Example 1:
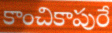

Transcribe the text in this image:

కాంచికాపురే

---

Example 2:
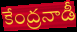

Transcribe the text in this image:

కేంద్రనాడీ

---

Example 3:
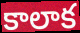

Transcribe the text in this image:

కాలాక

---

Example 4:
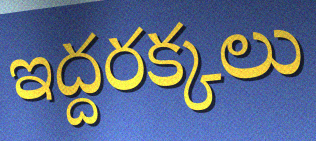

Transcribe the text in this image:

ఇద్దరక్కలు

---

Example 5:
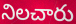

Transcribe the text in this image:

నిలచారు